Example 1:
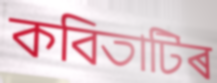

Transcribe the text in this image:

কবিতাটিৰ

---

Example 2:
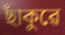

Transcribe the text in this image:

ছাঁকুৱে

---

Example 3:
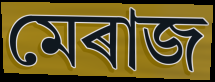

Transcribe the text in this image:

মেৰাজ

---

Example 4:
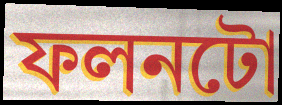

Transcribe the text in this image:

ফলনটো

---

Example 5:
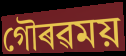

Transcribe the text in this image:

গৌৰৱময়